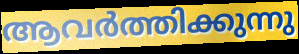
ആവർത്തിക്കുന്നു